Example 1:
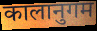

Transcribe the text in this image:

कालानुगम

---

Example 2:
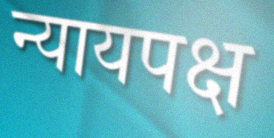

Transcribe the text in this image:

न्यायपक्ष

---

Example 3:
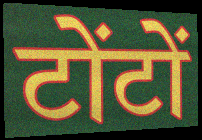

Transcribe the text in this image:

टोंटों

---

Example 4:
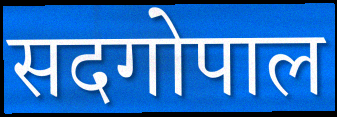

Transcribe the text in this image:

सदगोपाल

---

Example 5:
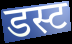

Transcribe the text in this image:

डस्ट